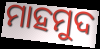
ମାହମୁଦ